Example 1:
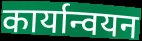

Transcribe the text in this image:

कार्यान्वयन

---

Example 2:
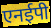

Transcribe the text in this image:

एनईपी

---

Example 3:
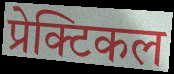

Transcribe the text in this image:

प्रेक्टिकल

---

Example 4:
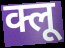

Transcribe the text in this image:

क्लू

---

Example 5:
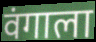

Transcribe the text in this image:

वंगाला